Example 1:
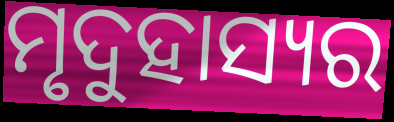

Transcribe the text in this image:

ମୃଦୁହାସ୍ୟର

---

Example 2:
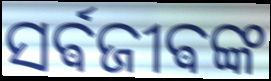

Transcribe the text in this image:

ସର୍ଵଜୀଵଙ୍କ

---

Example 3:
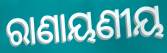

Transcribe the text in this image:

ରାଣାୟଣୀୟ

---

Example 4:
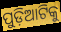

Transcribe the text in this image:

ପୁଡ଼ିଆଟିକୁ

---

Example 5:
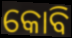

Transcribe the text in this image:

କୋବି